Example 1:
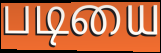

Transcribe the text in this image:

படியை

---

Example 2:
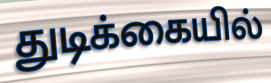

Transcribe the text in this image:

துடிக்கையில்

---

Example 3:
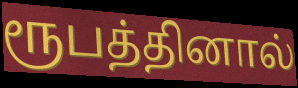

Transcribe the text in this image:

ரூபத்தினால்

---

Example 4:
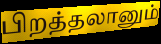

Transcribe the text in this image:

பிறத்தலானும்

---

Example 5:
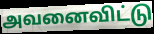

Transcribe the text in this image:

அவனைவிட்டு